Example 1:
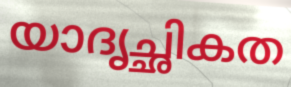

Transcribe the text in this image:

യാദൃച്ഛികത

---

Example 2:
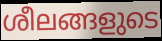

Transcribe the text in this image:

ശീലങ്ങളുടെ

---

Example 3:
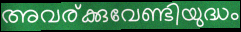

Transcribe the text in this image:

അവര്ക്കുവേണ്ടിയുദ്ധം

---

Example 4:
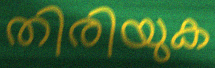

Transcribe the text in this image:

തിരിയുക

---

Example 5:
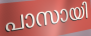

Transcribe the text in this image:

പാസായി